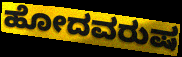
ಹೋದವರುಷ